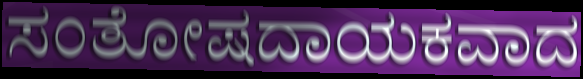
ಸಂತೋಷದಾಯಕವಾದ